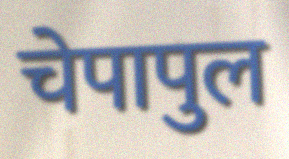
चेपापुल